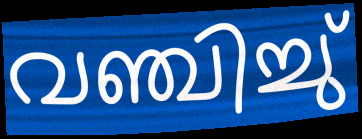
വഞ്ചിച്ചു്